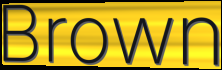
Brown